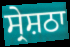
ਸ੍ਰੇਸ਼ਠਾ